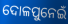
ଦୋଳପୁନେଇଁ